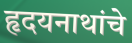
हृदयनाथांचे